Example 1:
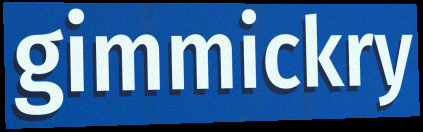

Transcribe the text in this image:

gimmickry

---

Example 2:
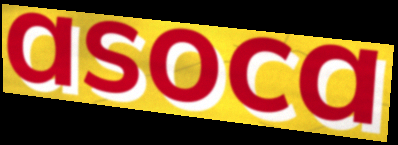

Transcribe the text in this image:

asoca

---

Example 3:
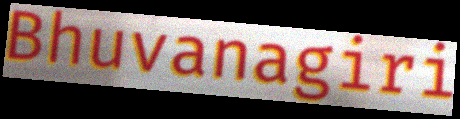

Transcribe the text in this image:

Bhuvanagiri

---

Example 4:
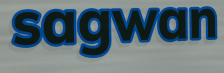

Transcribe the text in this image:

sagwan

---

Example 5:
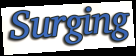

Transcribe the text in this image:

Surging